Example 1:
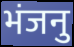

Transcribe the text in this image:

भंजनु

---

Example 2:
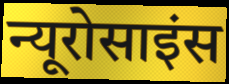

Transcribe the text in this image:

न्यूरोसाइंस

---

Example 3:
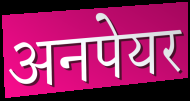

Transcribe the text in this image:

अनपेयर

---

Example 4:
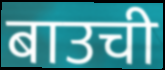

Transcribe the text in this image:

बाउची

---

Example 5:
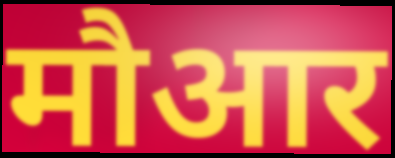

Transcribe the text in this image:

मौआर